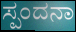
ಸ್ಪಂದನಾ